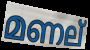
മണല്